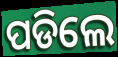
ପଡିଲେ